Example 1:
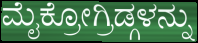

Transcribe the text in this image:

ಮೈಕ್ರೋಗ್ರಿಡ್ಗಳನ್ನು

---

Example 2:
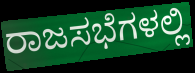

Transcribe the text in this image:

ರಾಜಸಭೆಗಳಲ್ಲಿ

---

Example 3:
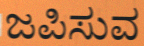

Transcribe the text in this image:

ಜಪಿಸುವ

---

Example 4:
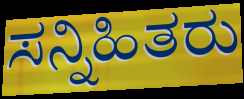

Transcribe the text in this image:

ಸನ್ನಿಹಿತರು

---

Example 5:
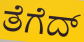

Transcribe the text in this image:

ತೆಗೆದ್